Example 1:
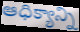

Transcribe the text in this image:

ఆధిక్యాన్ని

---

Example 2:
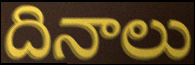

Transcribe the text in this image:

దినాలు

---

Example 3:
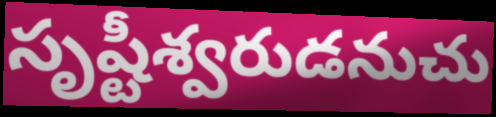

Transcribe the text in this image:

సృష్టీశ్వరుడనుచు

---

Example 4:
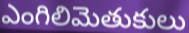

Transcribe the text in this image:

ఎంగిలిమెతుకులు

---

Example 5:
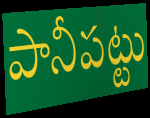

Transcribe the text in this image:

పానీపట్టు